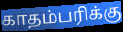
காதம்பரிக்கு